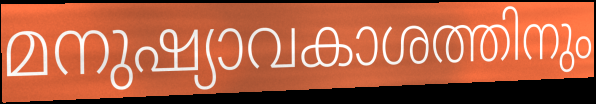
മനുഷ്യാവകാശത്തിനും